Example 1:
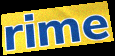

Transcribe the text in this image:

rime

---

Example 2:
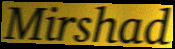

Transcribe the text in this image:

Mirshad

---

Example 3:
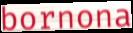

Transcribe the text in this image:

bornona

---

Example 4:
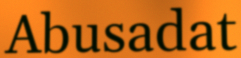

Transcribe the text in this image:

Abusadat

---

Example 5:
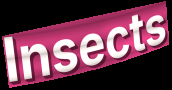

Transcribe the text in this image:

Insects